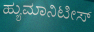
ಹ್ಯುಮಾನಿಟೀಸ್